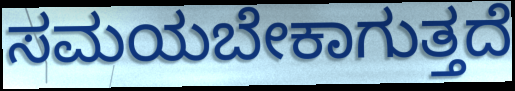
ಸಮಯಬೇಕಾಗುತ್ತದೆ